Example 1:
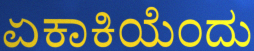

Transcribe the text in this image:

ಏಕಾಕಿಯೆಂದು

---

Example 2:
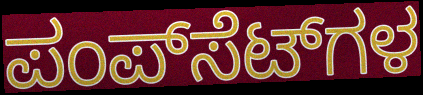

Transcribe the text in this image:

ಪಂಪ್‌ಸೆಟ್‌ಗಳ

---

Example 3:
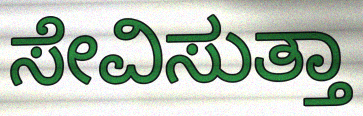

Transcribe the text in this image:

ಸೇವಿಸುತ್ತಾ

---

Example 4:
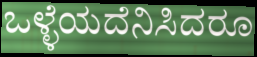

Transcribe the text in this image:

ಒಳ್ಳೆಯದೆನಿಸಿದರೂ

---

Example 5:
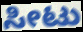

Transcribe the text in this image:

ಸೀಟು